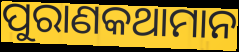
ପୁରାଣକଥାମାନ